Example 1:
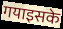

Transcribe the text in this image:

गयाइसके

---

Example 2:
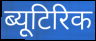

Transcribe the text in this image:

ब्यूटिरिक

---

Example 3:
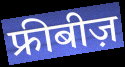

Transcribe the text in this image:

फ्रीबीज़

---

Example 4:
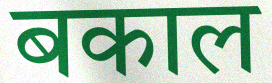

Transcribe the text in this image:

बकाल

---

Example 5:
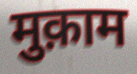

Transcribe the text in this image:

मुक़ाम